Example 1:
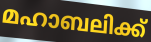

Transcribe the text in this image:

മഹാബലിക്ക്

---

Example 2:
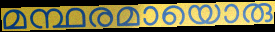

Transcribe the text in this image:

മന്ഥരമായൊരു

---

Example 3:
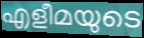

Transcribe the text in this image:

എളീമയുടെ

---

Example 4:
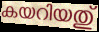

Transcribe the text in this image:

കയറിയതു്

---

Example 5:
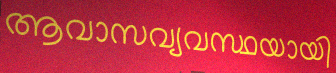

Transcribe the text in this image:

ആവാസവ്യവസ്ഥയായി